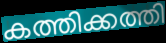
കത്തിക്കത്തി